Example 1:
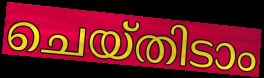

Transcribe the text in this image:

ചെയ്തിടാം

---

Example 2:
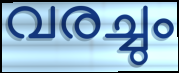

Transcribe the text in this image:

വരച്ചും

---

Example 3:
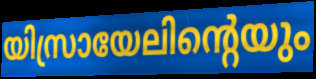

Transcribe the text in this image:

യിസ്രായേലിന്റെയും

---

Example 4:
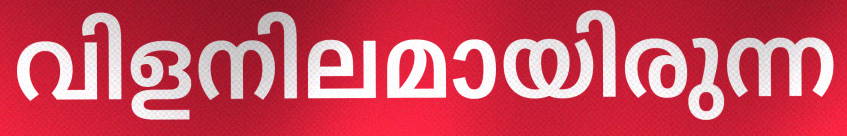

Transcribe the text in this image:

വിളനിലമായിരുന്ന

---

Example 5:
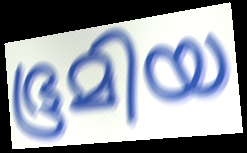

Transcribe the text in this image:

ഭൂമിയ